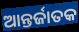
ଆନ୍ତର୍ଜାତକ